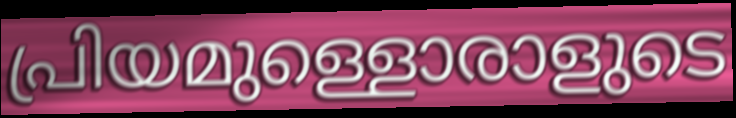
പ്രിയമുള്ളൊരാളുടെ